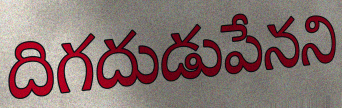
దిగదుడుపేనని